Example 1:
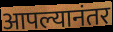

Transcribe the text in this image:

आपल्यानंतर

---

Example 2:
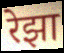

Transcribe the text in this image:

रेझा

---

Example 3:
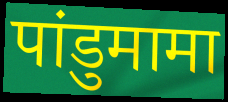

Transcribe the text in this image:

पांडुमामा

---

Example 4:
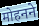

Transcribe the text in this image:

मोहनने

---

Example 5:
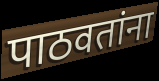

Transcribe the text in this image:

पाठवतांना